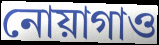
নোয়াগাও